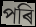
পৰি